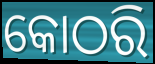
କୋଠରି